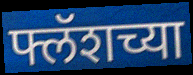
फ्लॅशच्या